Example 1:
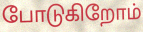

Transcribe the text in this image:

போடுகிறோம்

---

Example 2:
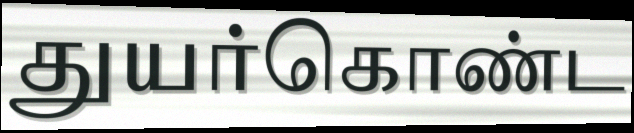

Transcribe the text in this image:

துயர்கொண்ட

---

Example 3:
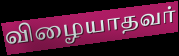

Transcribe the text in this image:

விழையாதவர்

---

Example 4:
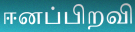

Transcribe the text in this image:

ஈனப்பிறவி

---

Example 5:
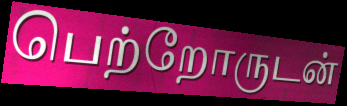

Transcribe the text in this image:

பெற்றோருடன்